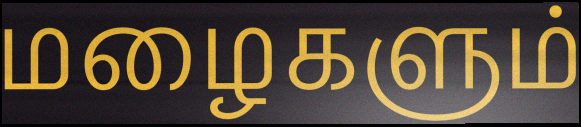
மழைகளும்